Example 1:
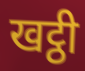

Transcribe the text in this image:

खट्ठी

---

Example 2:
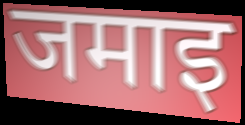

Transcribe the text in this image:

जमाइ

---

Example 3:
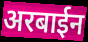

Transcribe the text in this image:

अरबाईन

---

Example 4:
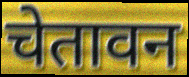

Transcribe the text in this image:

चेतावन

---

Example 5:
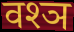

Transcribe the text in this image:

वश्ञ